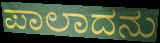
ಪಾಲಾದನು